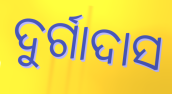
ଦୁର୍ଗାଦାସ